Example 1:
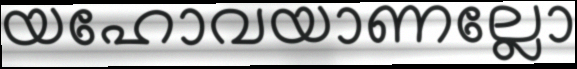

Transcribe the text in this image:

യഹോവയാണല്ലോ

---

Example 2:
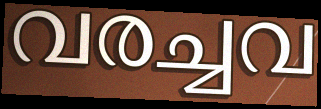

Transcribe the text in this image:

വരച്ചവ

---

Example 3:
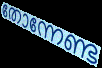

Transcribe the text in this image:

തോന്നേണ്ട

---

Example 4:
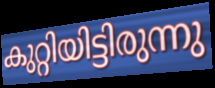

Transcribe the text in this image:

കുറ്റിയിട്ടിരുന്നു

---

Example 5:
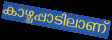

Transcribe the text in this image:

കാഴ്ചപ്പാടിലാണ്